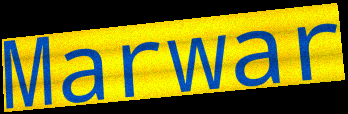
Marwar